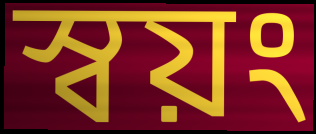
স্বয়ং